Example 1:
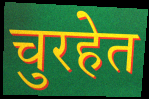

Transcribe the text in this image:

चुरहेत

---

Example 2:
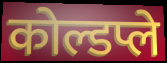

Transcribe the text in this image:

कोल्डप्ले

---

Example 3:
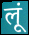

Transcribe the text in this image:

लूं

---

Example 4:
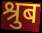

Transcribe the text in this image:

श्रुब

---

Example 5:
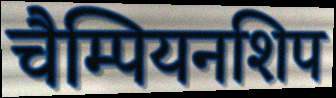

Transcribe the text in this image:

चैम्पियनशिप